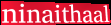
ninaithaal